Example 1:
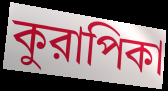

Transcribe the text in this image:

কুরাপিকা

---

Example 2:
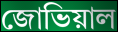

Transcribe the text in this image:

জোভিয়াল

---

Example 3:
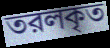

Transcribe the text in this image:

তরলকৃত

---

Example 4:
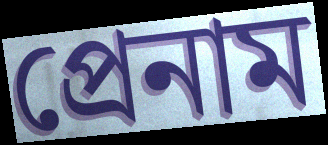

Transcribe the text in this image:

প্রেনাম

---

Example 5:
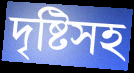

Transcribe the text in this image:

দৃষ্টিসহ